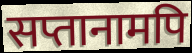
सप्तानामपि